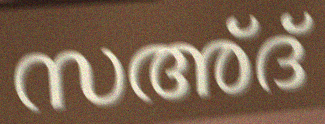
സഅ്ദ്